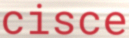
cisce